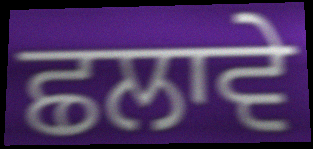
ਛਲਾਵੇ